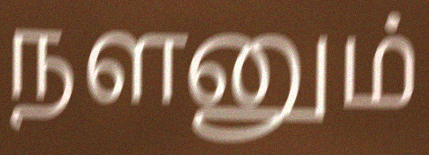
நளனும்